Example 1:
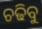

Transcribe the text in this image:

ଚଢିବୁ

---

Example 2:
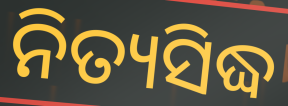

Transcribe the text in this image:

ନିତ୍ୟସିଦ୍ଧ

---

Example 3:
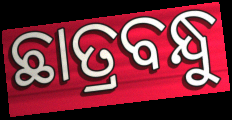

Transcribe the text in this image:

ଛାତ୍ରବନ୍ଧୁ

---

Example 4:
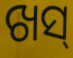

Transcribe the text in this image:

ଖସ୍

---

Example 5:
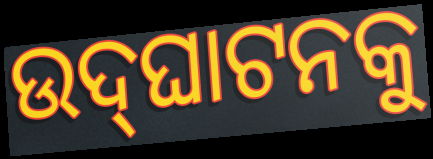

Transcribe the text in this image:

ଉଦ୍‌ଘାଟନକୁ